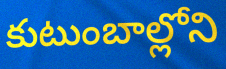
కుటుంబాల్లోని